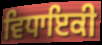
ਵਿਧਾਇਕੀ